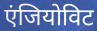
एंजियोविट